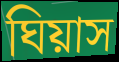
ঘিয়াস